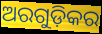
ଅରଗୁଡ଼ିକର